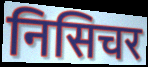
निसिचर